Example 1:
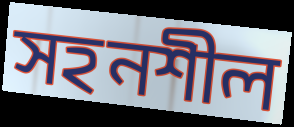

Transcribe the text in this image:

সহনশীল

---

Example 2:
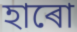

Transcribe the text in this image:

হাৰো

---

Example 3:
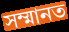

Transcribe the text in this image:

সম্মানত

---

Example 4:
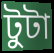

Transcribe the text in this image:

টুটা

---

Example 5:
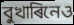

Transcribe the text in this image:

বুখাৰিনেও